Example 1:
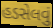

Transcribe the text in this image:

હડસેલવું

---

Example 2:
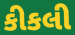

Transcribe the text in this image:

કીકલી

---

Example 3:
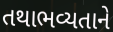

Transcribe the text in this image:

તથાભવ્યતાને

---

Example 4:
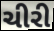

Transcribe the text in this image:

ચીરી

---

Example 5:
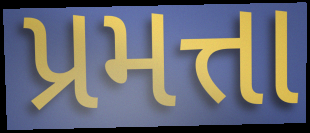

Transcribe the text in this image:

પ્રમત્તા